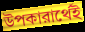
উপকারার্থেই